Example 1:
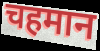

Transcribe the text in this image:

चहमान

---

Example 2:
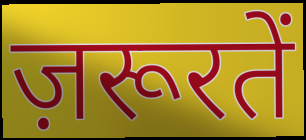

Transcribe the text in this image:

ज़रूरतें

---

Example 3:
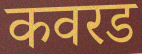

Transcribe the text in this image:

कवरड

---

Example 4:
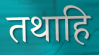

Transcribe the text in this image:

तथाहि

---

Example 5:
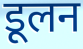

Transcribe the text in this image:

डूलन